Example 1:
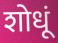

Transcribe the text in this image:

शोधूं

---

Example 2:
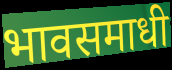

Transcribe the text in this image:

भावसमाधी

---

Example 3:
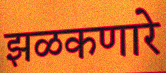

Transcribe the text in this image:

झळकणारे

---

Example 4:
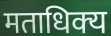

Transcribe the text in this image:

मताधिक्‍य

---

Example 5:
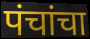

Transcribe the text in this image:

पंचांचा